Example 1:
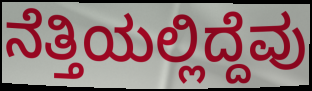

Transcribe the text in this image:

ನೆತ್ತಿಯಲ್ಲಿದ್ದೆವು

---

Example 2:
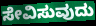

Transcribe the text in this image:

ಸೇವಿಸುವುದು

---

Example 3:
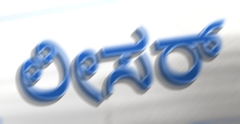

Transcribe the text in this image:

ಲೀಸರ್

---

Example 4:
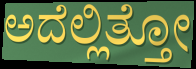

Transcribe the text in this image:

ಅದೆಲ್ಲಿತ್ತೋ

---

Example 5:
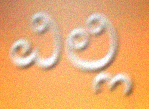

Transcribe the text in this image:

ವಿಲ್ಲಿ